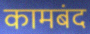
कामबंद